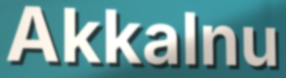
Akkalnu